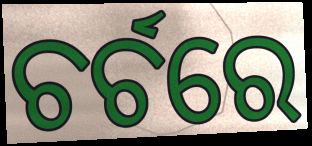
ଚର୍ଚରେ